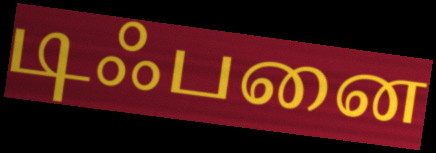
டிஃபனை